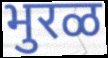
भुरळ